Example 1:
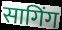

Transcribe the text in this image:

सागिंग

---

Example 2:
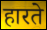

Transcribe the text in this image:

हारते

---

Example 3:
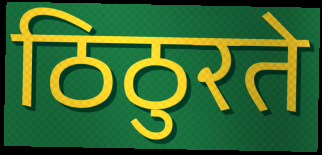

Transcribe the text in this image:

ठिठुरते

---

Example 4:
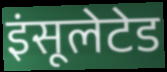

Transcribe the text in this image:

इंसूलेटेड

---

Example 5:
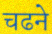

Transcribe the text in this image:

चढने